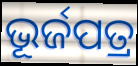
ଭୂର୍ଜପତ୍ର